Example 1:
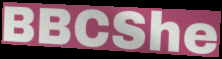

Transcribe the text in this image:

BBCShe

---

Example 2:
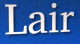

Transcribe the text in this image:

Lair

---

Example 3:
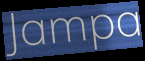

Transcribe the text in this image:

Jampa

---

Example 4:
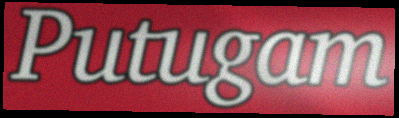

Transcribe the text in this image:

Putugam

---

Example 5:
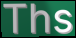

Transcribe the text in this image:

Ths